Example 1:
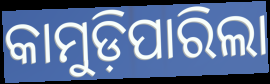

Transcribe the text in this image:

କାମୁଡ଼ିପାରିଲା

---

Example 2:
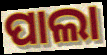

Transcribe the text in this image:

ପାଲା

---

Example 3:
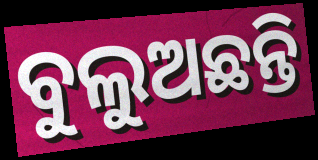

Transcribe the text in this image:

ବୁଲୁଅଛନ୍ତି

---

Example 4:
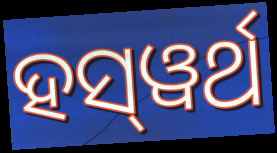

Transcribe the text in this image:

ହସ୍‌ୱର୍ଥ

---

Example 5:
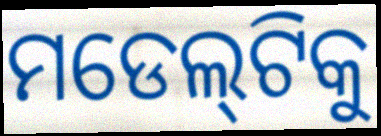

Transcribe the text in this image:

ମଡେଲ୍‌ଟିକୁ